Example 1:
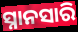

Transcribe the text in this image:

ସ୍ନାନସାରି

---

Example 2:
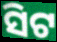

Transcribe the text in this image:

ସିଟ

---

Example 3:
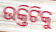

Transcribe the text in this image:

ଉକ୍ତିଟିକୁ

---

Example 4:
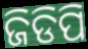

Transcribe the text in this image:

ଜିଡିପି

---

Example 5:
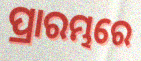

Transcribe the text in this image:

ପ୍ରାରମ୍ଭରେ